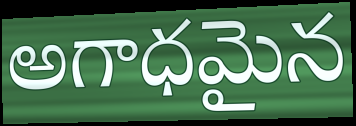
అగాధమైన